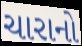
ચારાનો